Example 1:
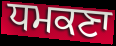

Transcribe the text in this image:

ਧਮਕਣਾ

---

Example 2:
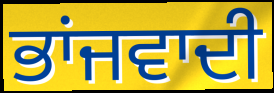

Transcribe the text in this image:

ਭਾਂਜਵਾਦੀ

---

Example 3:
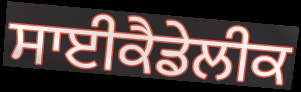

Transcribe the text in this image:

ਸਾਈਕੈਡੇਲੀਕ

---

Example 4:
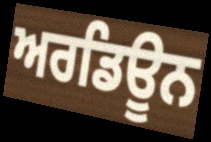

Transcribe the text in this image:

ਅਰਡਿਊਨ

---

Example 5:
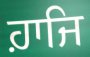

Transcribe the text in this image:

ਹ਼ਾਜਿ